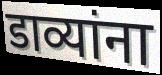
डाव्यांना